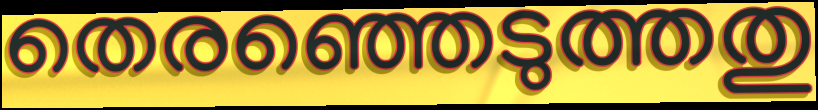
തെരഞ്ഞെടുത്തതു